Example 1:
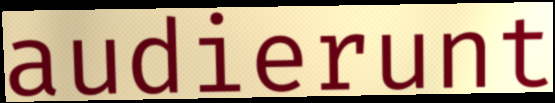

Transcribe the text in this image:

audierunt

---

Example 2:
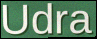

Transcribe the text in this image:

Udra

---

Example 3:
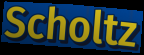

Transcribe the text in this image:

Scholtz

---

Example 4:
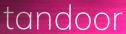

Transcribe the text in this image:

tandoor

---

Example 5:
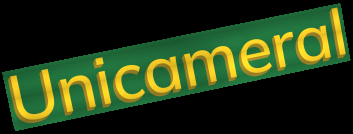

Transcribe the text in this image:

Unicameral